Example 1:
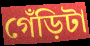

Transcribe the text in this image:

গেঁড়িটা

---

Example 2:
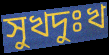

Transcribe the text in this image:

সুখদুঃখ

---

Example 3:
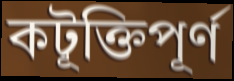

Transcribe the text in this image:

কটূক্তিপূর্ণ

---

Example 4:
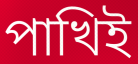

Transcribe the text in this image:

পাখিই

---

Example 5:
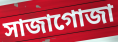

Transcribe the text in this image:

সাজাগোজা